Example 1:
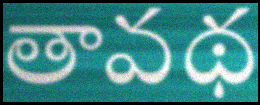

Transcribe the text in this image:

తావథ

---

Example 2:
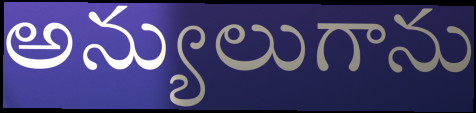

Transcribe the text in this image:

అన్యులుగాను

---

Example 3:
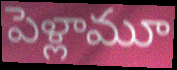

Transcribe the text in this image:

పెళ్లామూ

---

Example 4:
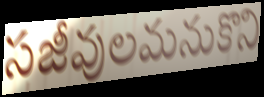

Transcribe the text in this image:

సజీవులమనుకొని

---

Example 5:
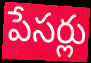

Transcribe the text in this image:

పేసర్లు